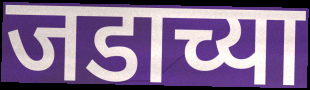
जडाच्या